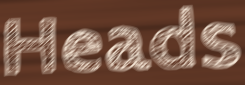
Heads